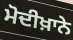
ਮੋਦੀਖ਼ਾਨੇ